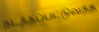
நடத்தப்பட்டுவந்த